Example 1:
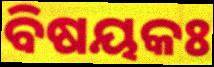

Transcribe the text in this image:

ବିଷୟକଃ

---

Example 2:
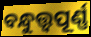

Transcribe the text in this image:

ବନ୍ଧୁତ୍ତ୍ୱପୂର୍ଣ୍ଣ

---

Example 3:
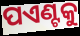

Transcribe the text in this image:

ପଏଣ୍ଟକୁ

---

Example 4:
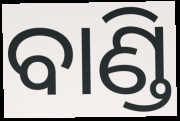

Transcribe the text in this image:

ବାଣ୍ଡି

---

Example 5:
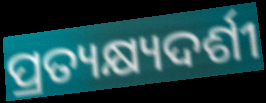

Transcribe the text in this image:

ପ୍ରତ୍ୟକ୍ଷ୍ୟଦର୍ଶୀ